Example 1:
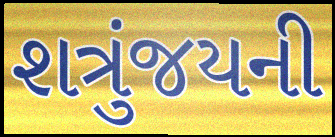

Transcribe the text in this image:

શત્રુંજયની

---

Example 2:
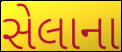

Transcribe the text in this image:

સેલાના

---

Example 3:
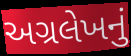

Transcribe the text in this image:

અગ્રલેખનું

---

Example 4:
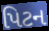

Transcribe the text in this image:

પિટન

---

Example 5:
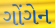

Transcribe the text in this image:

ગોંગેન